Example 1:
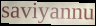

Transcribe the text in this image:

saviyannu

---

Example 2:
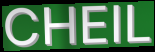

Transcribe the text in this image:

CHEIL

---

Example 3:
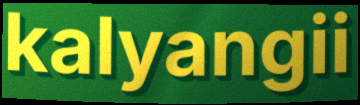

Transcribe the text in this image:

kalyangii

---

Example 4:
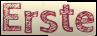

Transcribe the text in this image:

Erste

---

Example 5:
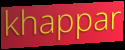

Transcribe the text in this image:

khappar